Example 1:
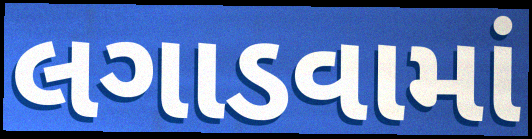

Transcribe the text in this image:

લગાડવામાં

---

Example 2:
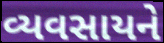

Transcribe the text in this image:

વ્યવસાયને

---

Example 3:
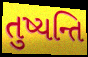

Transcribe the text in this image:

તુષ્યન્તિ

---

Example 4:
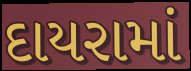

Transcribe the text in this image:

દાયરામાં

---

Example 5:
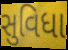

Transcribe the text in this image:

સુવિધા